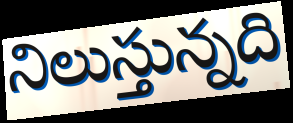
నిలుస్తున్నది